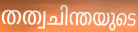
തത്വചിന്തയുടെ